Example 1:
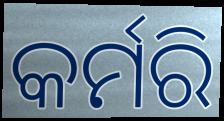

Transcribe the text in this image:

କର୍ମରି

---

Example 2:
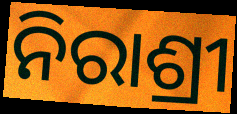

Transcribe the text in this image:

ନିରାଶ୍ରୀ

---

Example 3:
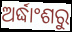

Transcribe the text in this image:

ଅର୍ଦ୍ଧାଂଶରୁ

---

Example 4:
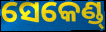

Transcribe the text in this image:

ସେକେଣ୍ଡ୍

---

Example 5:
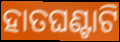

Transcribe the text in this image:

ହାତଘଣ୍ଟାଟି